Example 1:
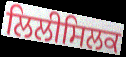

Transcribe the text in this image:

ਲਿਲੀਸਿਲਕ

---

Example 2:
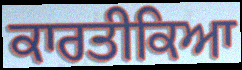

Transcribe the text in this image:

ਕਾਰਤੀਕਿਆ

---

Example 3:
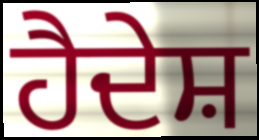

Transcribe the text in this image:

ਹੈਦੇਸ਼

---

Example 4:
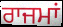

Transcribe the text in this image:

ਰਾਜਮਾਂ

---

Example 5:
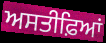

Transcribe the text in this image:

ਅਸਤੀਫ਼ਿਆਂ